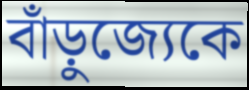
বাঁড়ুজ্যেকে